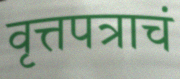
वृत्तपत्राचं